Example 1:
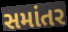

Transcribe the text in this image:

સમાંતર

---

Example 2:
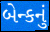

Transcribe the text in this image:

બેન્કનું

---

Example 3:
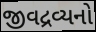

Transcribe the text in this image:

જીવદ્રવ્યનો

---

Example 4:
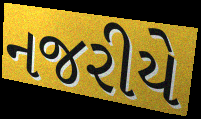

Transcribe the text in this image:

નજરીયે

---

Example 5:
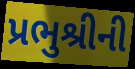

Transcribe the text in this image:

પ્રભુશ્રીની